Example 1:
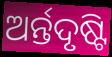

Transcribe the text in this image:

ଅର୍ନ୍ତଦୃଷ୍ଟି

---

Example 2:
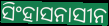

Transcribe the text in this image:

ସିଂହାସନାସୀନ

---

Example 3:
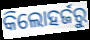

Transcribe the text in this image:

କିଲୋହର୍ଜରୁ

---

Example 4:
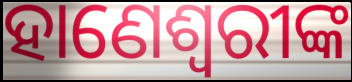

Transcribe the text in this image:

ହାଣେଶ୍ୱରୀଙ୍କ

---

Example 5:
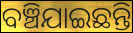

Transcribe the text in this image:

ବଞ୍ଚିଯାଇଛନ୍ତି